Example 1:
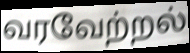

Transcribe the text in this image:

வரவேற்றல்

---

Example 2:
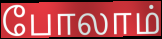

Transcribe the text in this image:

போலாம்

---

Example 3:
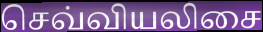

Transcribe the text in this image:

செவ்வியலிசை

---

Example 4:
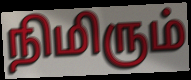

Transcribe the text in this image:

நிமிரும்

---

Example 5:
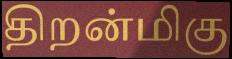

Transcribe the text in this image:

திறன்மிகு